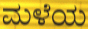
ಮಳೆಯ